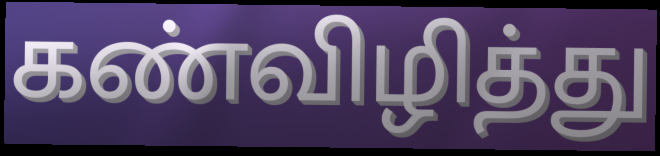
கண்விழித்து